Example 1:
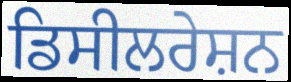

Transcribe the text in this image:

ਡਿਸੀਲਰੇਸ਼ਨ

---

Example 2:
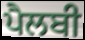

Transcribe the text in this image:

ਪੈਲਬੀ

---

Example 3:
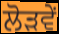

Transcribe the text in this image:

ਲੋੜਵੇਂ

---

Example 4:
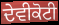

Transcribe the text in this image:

ਦੇਵੀਕੋਟੀ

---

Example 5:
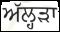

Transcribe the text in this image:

ਅੱਲ੍ਹੜਾ